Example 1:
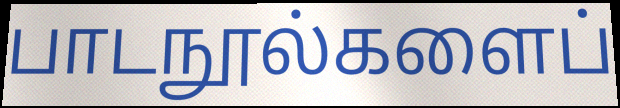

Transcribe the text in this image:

பாடநூல்களைப்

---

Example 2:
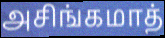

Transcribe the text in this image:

அசிங்கமாத்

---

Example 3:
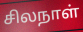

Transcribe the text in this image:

சிலநாள்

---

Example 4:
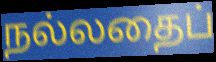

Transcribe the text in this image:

நல்லதைப்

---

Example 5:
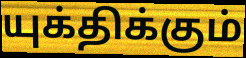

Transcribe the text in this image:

யுக்திக்கும்